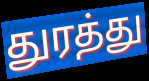
துரத்து